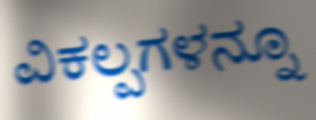
ವಿಕಲ್ಪಗಳನ್ನೂ